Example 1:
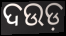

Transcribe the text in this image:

ଦଉଡ଼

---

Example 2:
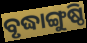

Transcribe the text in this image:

ବୃଦ୍ଧାଙ୍ଗୁଷ୍ଠି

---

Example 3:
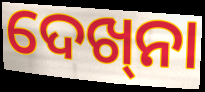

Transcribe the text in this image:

ଦେଖ୍‌ନା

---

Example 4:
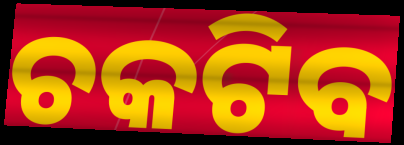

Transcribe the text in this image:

ଚକଟିବ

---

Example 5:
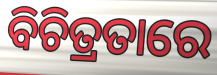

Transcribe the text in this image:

ବିଚିତ୍ରତାରେ